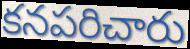
కనపరిచారు